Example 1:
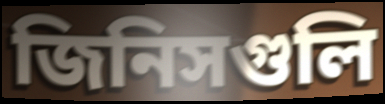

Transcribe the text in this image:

জিনিসগুলি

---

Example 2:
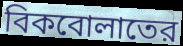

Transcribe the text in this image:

বিকবোলাতের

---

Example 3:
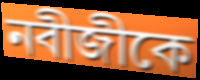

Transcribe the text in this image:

নবীজীকে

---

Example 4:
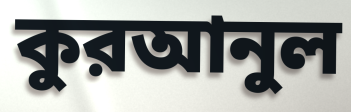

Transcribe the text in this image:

কুরআনুল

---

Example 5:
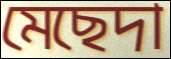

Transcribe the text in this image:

মেছেদা